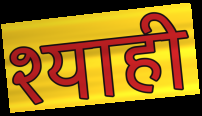
श्याही